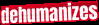
dehumanizes